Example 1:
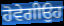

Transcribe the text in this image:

ਹੋਵੇਗੀਉਹ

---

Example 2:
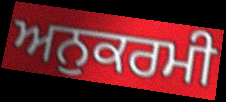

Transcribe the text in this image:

ਅਨੁਕਰਮੀ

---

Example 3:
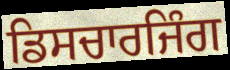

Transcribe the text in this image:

ਡਿਸਚਾਰਜਿੰਗ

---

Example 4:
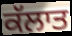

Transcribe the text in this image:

ਕੱਲਾਤ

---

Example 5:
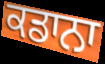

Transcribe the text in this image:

ਕਡਾਨਾ